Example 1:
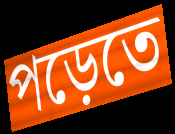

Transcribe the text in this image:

পড়েতে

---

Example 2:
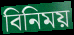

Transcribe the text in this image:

বিনিময়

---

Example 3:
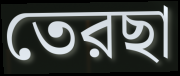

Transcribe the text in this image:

তেরছা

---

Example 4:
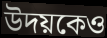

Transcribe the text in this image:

উদয়কেও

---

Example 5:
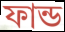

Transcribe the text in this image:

ফান্ড